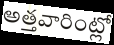
అత్తవారింట్లో